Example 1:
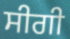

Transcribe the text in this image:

ਸੀਗੀ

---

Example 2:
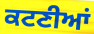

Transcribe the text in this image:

ਕਟਣੀਆਂ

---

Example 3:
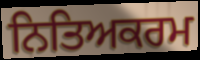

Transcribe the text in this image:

ਨਿਤਿਅਕਰਮ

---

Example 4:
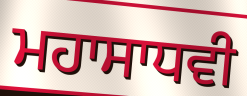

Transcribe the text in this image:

ਮਹਾਸਾਧਵੀ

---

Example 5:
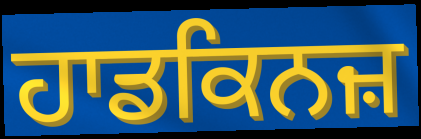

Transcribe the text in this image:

ਹਾਡਕਿਨਜ਼